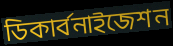
ডিকার্বনাইজেশন